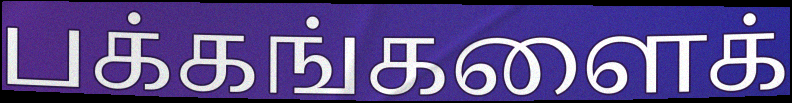
பக்கங்களைக்